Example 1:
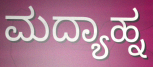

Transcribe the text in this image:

ಮದ್ಯಾಹ್ನ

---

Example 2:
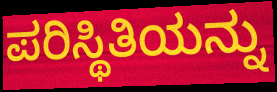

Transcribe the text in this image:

ಪರಿಸ್ಥಿತಿಯನ್ನು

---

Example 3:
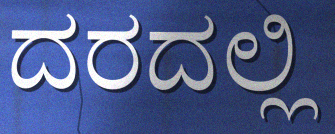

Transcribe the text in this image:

ದರದಲ್ಲಿ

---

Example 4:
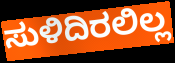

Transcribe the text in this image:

ಸುಳಿದಿರಲಿಲ್ಲ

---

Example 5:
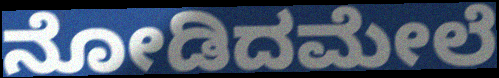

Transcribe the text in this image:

ನೋಡಿದಮೇಲೆ